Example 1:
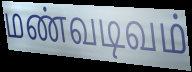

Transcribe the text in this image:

மண்வடிவம்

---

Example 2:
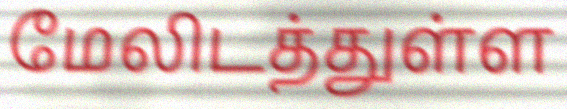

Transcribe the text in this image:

மேலிடத்துள்ள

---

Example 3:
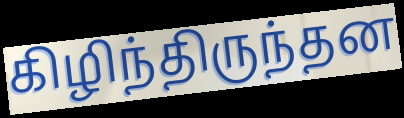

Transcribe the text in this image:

கிழிந்திருந்தன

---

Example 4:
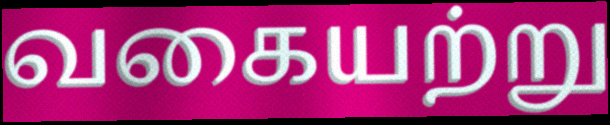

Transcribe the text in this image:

வகையற்று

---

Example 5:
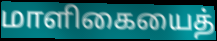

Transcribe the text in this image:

மாளிகையைத்